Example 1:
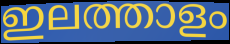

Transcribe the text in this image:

ഇലത്താളം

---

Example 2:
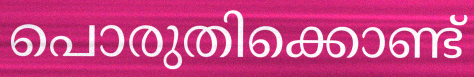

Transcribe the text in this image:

പൊരുതിക്കൊണ്ട്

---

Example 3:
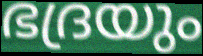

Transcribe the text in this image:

ഭദ്രയും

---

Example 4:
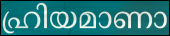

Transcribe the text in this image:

ഹ്രിയമാണാ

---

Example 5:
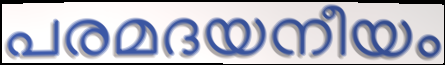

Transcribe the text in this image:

പരമദയനീയം